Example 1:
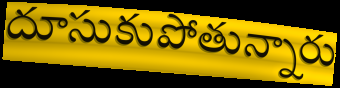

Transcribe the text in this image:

దూసుకుపోతున్నారు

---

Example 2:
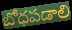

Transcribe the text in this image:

బోధపడాలి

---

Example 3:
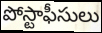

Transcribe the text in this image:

పోస్టాఫీసులు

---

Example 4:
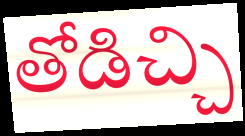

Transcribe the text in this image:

తోడిచ్చి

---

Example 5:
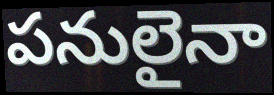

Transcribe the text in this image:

పనులైనా